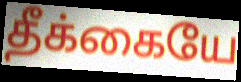
தீக்கையே